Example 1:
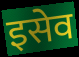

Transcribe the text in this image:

इसेव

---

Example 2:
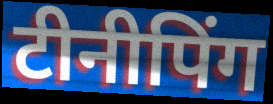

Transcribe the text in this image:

टीनीपिंग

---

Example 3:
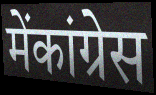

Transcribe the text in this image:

मेंकांग्रेस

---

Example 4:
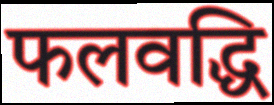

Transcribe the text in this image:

फलवद्धि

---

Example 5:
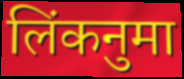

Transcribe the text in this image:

लिंकनुमा